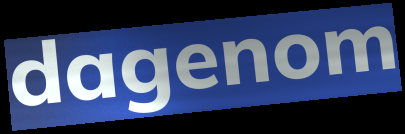
dagenom